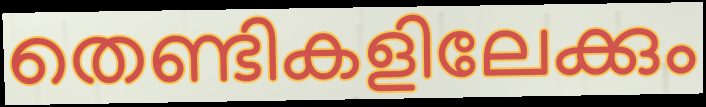
തെണ്ടികളിലേക്കും